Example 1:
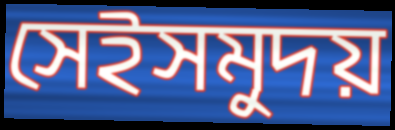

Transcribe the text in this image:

সেইসমুদয়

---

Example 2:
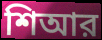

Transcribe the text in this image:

শিআর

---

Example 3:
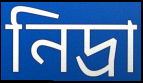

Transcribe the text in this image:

নিদ্রা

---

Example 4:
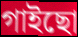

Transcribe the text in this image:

গাইছো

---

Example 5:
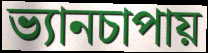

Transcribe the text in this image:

ভ্যানচাপায়